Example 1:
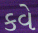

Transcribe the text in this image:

કવે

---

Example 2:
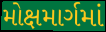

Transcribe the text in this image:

મોક્ષમાર્ગમાં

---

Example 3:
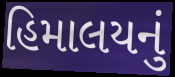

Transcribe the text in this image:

હિમાલયનું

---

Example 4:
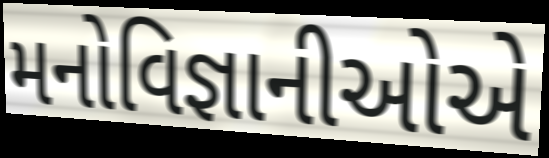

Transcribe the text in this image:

મનોવિજ્ઞાનીઓએ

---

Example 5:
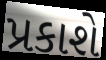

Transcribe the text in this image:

પ્રકાશે